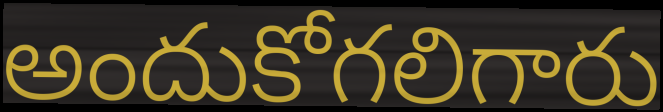
అందుకోగలిగారు